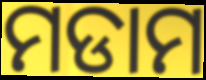
ମଡାମ